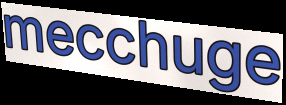
mecchuge